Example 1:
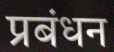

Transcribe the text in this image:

प्रबंधन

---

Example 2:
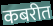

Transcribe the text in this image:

कबरीत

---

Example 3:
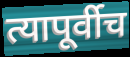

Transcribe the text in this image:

त्यापूर्वीच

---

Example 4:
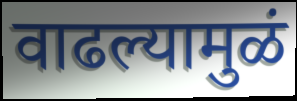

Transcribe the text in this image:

वाढल्यामुळं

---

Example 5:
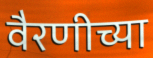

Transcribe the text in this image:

वैरणीच्या